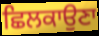
ਛਿਲਕਾਉਣਾ